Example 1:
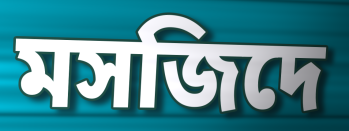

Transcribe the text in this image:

মসজিদে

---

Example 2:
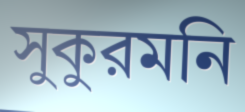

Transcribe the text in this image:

সুকুরমনি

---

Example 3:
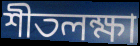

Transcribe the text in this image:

শীতলক্ষা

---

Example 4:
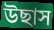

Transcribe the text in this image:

উছাস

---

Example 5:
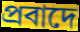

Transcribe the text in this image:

প্রবাদে